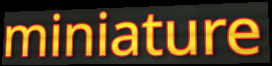
miniature